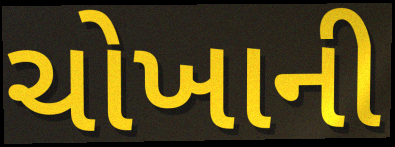
ચોખાની